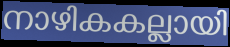
നാഴികകല്ലായി